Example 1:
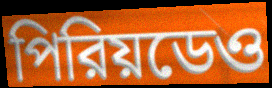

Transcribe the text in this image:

পিরিয়ডেও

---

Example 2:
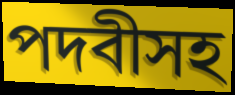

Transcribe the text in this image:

পদবীসহ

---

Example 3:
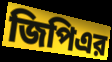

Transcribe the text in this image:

জিপিএর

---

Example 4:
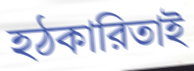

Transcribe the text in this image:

হঠকারিতাই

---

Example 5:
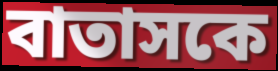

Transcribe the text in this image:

বাতাসকে